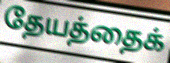
தேயத்தைக்